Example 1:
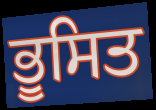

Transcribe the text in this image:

ਭੂਸਿਤ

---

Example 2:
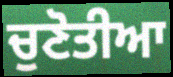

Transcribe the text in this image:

ਚੁਣੋਤੀਆ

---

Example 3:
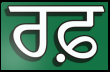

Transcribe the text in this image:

ਰਫ਼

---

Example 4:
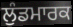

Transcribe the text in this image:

ਲੁੰਡਮਾਰਕ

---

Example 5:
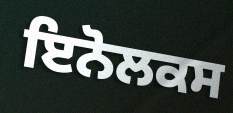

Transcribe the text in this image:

ਇਨੋਲਕਸ